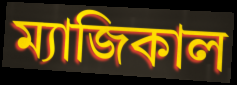
ম্যাজিকাল